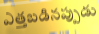
ఎత్తబడినప్పుడు